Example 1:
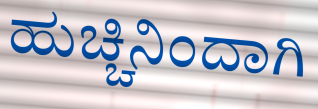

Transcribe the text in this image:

ಹುಚ್ಚಿನಿಂದಾಗಿ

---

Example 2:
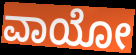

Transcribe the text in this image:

ವಾಯೋ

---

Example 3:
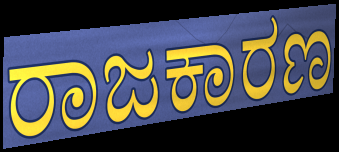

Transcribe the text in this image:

ರಾಜಕಾರಣ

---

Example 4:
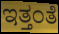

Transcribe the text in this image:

ಇತ್ತಂತೆ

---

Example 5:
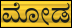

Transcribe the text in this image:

ಮೋಡ